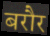
बरौर